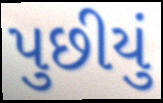
પુછીયું